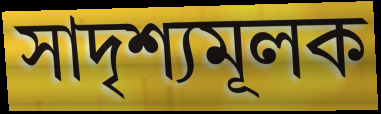
সাদৃশ্যমূলক